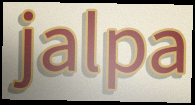
jalpa